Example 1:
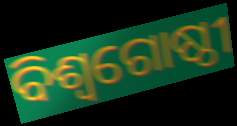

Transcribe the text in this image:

ବିଶ୍ୱଗୋଷ୍ଠୀ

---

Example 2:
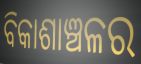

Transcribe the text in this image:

ବିକାଶାଞ୍ଚଳର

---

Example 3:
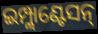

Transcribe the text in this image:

ଇମ୍ପ୍ଲାଣ୍ଟେସନ୍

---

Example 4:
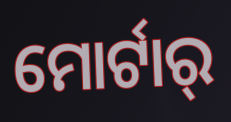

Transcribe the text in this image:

ମୋର୍ଟାର୍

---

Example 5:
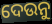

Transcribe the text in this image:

ଦେଉନୁ